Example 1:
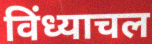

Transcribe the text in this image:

विंध्याचल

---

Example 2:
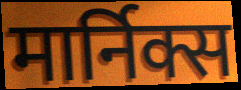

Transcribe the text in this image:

मार्निक्स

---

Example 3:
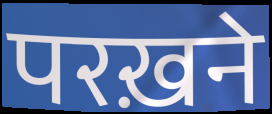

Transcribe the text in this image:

परख़ने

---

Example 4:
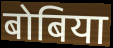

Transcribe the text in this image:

बोबिया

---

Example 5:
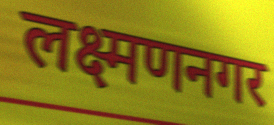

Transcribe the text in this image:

लक्ष्मणनगर